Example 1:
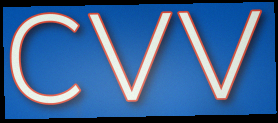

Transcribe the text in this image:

cvv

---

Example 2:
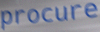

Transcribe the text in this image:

procure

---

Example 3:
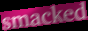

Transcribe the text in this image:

smacked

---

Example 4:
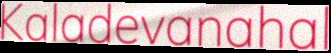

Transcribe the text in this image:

Kaladevanahal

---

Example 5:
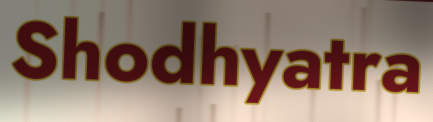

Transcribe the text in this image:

Shodhyatra